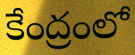
కేంద్రంలో